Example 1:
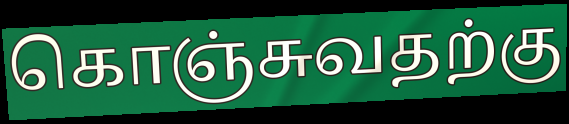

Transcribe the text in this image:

கொஞ்சுவதற்கு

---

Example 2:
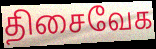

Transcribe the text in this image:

திசைவேக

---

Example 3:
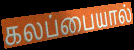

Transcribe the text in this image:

கலப்பையால்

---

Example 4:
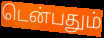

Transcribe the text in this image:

டென்பதும்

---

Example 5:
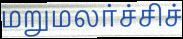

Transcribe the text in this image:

மறுமலர்ச்சிச்